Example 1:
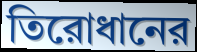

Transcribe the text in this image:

তিরোধানের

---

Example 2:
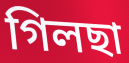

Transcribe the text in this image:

গিলছা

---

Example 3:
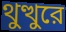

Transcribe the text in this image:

থুত্থুরে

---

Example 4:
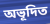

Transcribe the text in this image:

অভূদিত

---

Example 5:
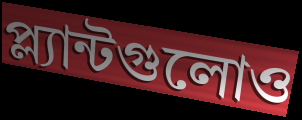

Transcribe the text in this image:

প্ল্যান্টগুলোও